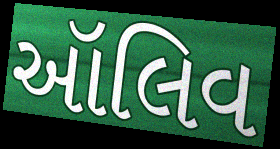
ઑલિવ